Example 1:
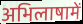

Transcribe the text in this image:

अभिलाषामें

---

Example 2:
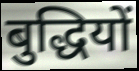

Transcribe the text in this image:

बुद्धियों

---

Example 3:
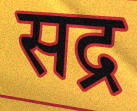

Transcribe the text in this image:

सद्र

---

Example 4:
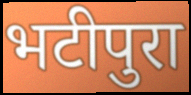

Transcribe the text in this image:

भटीपुरा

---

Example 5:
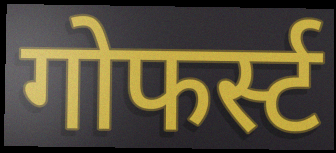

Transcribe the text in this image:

गोफर्स्ट